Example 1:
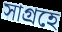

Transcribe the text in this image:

সাগ্রহে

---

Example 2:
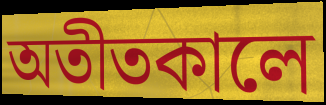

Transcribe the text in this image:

অতীতকালে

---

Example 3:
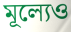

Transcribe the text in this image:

মূল্যেও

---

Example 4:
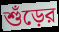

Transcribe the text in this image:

শুঁড়ের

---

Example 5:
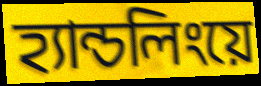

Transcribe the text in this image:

হ্যান্ডলিংয়ে